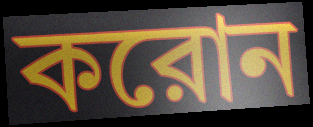
করোন